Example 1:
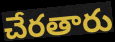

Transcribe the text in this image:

చేరతారు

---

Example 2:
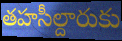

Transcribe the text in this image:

తహసీల్దారుకు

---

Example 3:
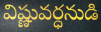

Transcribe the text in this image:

విష్ణువర్ధనుడి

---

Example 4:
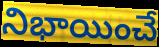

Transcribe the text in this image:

నిభాయించే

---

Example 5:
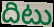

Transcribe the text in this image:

దిటు